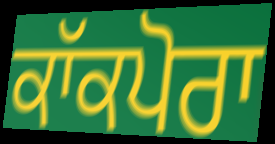
ਕਾੱਕਪੋਰਾ